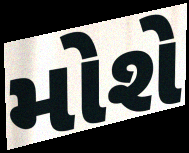
મોશે